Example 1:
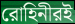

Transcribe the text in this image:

রোহিনীরই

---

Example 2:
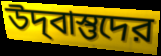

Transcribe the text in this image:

উদ্‌বাস্তুদের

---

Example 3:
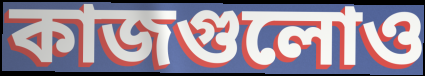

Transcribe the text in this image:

কাজগুলোও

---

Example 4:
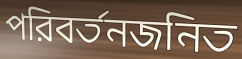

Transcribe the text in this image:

পরিবর্তনজনিত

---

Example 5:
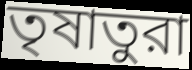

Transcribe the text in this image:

তৃষাতুরা